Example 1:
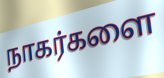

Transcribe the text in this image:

நாகர்களை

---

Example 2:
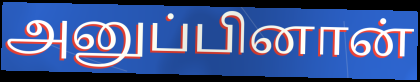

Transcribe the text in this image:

அனுப்பினான்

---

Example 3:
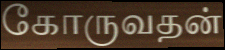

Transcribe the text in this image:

கோருவதன்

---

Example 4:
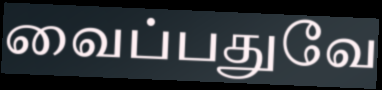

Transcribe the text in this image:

வைப்பதுவே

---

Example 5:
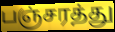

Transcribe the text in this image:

பஞ்சரத்து